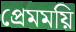
প্রেমময়ি